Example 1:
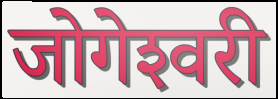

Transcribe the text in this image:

जोगेश्‍वरी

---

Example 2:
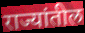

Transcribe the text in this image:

राज्यांतील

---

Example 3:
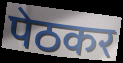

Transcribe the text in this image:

पेठकर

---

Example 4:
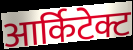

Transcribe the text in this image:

आर्किटेक्ट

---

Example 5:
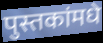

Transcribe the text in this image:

पुस्तकांमधे